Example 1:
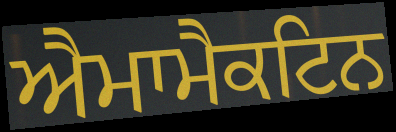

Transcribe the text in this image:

ਐਮਾਮੈਕਟਿਨ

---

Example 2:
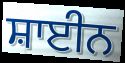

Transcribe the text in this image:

ਸ਼ਾਈਨ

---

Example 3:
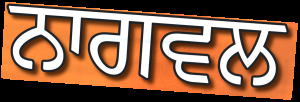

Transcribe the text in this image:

ਨਾਗਵਲ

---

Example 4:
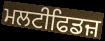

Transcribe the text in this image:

ਮਲਟੀਫਿਡਜ਼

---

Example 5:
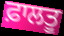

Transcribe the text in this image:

ਫ਼ਾਲਤੂ